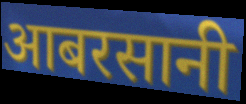
आबरसानी